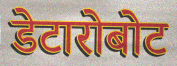
डेटारोबोट